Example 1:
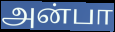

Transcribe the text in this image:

அன்பா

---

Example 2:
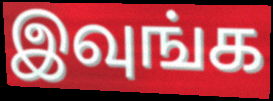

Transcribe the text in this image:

இவுங்க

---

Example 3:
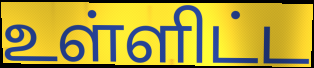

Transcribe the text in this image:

உள்ளிட்ட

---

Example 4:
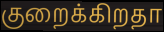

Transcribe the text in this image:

குறைக்கிறதா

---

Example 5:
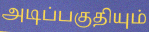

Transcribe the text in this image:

அடிப்பகுதியும்